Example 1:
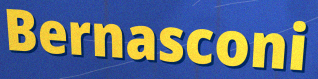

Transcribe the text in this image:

Bernasconi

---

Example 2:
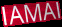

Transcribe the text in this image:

IAMAI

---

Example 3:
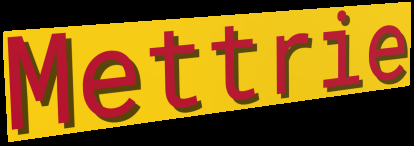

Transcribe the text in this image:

Mettrie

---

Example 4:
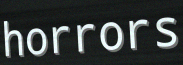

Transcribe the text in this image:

horrors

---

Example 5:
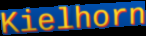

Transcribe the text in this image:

Kielhorn